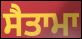
ਸੈਤਾਮਾ